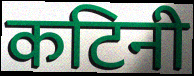
कटिनी